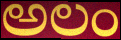
అలం